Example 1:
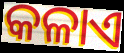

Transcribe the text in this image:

କଳାଏ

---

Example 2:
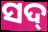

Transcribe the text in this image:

ସଦ୍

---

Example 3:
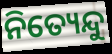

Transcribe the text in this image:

ନିତ୍ୟେନ୍ଦୁ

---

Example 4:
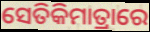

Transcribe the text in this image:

ସେତିକିମାତ୍ରାରେ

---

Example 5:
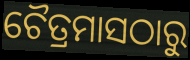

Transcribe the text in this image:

ଚୈତ୍ରମାସଠାରୁ